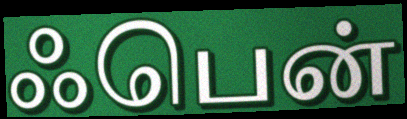
ஃபென்